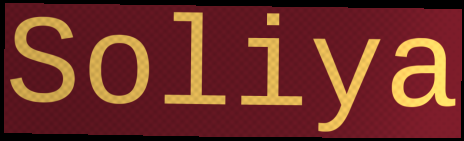
Soliya